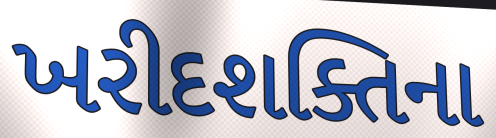
ખરીદશક્તિના